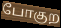
போகுற